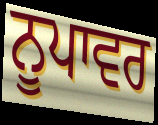
ਨੂਪਾਵਰ